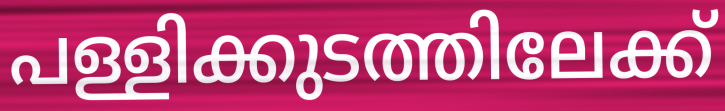
പള്ളിക്കുടത്തിലേക്ക്